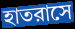
হাতরাসে